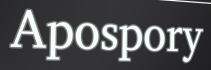
Apospory